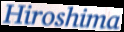
Hiroshima